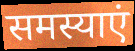
समस्याएं